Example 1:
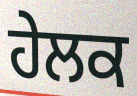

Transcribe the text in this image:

ਹੇਲਕ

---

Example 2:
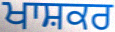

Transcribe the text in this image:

ਖਾਸ਼ਕਰ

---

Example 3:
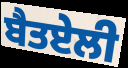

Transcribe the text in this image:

ਬੈਤਏਲੀ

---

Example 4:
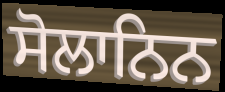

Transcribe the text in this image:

ਸੋਲਾਨਿਨ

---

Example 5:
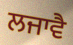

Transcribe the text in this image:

ਲਜਾਵੈ